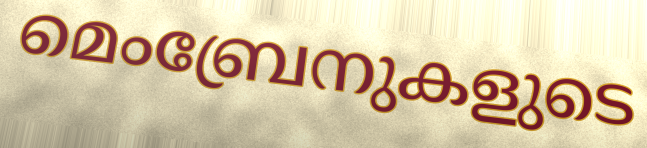
മെംബ്രേനുകളുടെ